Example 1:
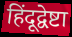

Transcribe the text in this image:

हिंदूद्वेष्टा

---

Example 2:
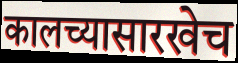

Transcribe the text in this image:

कालच्यासारखेच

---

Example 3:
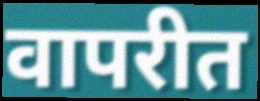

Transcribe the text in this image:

वापरीत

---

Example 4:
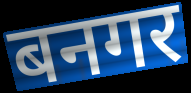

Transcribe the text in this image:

बनगर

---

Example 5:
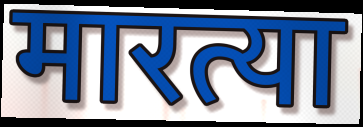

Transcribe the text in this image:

मारत्या